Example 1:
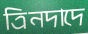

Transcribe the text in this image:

ত্রিনদাদে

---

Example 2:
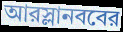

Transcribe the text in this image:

আরস্লানববের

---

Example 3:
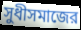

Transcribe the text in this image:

সুধীসমাজের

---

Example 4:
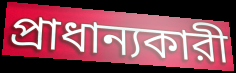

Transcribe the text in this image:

প্রাধান্যকারী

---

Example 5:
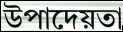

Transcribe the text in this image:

উপাদেয়তা